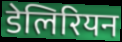
डेलिरियन